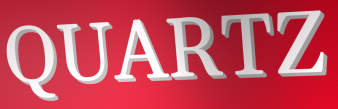
QUARTZ